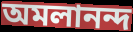
অমলানন্দ